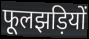
फूलझड़ियों